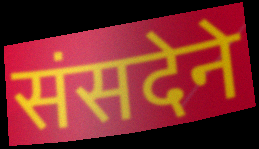
संसदेने